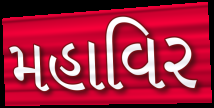
મહાવિર